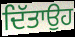
ਦਿੱਤਾਉਹ